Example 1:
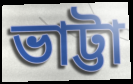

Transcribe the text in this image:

ভাট্টা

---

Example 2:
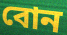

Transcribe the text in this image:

বোন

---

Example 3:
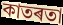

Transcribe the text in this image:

কাতৰতা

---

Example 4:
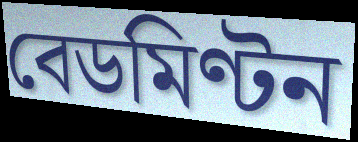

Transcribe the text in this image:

বেডমিণ্টন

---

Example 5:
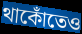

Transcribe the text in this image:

থাকোঁতেও